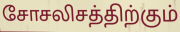
சோசலிசத்திற்கும்